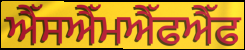
ਐੱਸਐੱਮਐੱਫਐੱਫ